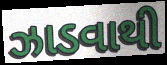
ઝાડવાથી